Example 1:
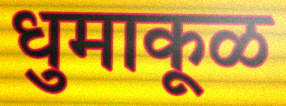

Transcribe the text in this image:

धुमाकूळ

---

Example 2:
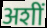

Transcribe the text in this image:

अशीं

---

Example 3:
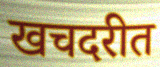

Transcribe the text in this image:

खचदरीत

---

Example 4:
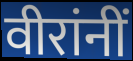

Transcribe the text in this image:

वीरांनीं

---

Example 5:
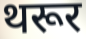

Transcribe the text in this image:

थरूर